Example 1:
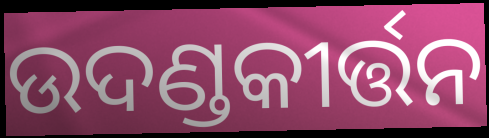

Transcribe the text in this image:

ଉଦଣ୍ଡକୀର୍ତ୍ତନ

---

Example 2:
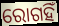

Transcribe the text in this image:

ରୋଗହିଁ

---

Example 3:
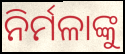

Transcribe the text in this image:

ନିର୍ମଳାଙ୍କୁ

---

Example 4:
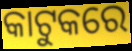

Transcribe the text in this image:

କାଟୁକରେ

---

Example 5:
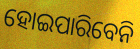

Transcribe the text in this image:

ହୋଇପାରିବେନି